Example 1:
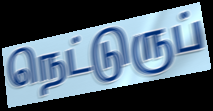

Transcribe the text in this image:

நெட்டுருப்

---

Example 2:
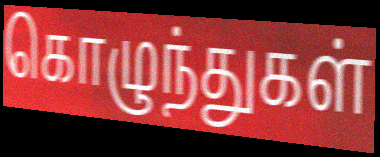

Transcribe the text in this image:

கொழுந்துகள்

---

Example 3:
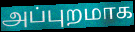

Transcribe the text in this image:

அப்புறமாக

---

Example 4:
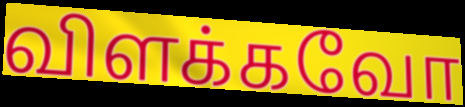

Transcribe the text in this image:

விளக்கவோ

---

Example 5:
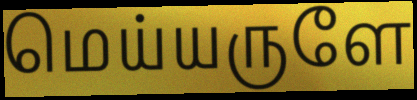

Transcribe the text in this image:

மெய்யருளே